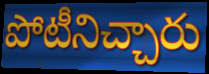
పోటీనిచ్చారు